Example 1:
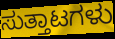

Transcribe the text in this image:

ಸುತ್ತಾಟಗಳು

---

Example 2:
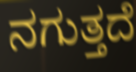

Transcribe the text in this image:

ನಗುತ್ತದೆ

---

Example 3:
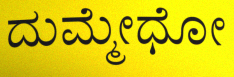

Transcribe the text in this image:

ದುಮ್ಮೇಧೋ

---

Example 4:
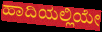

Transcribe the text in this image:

ಹಾದಿಯಲ್ಲಿಯೇ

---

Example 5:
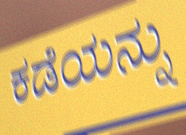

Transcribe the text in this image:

ಕಡೆಯನ್ನು